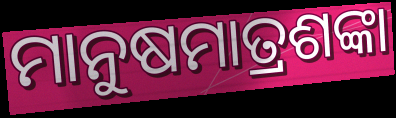
ମାନୁଷମାତ୍ରଶଙ୍କା